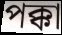
পক্কা